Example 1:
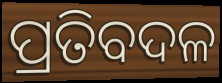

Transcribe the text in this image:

ପ୍ରତିବଦଳ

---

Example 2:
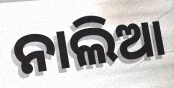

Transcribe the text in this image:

ନାଲିଆ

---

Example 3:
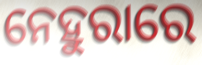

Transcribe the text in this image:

ନେହୁରାରେ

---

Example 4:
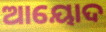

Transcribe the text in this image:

ଆୟୋଦ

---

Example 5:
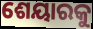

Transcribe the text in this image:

ଶେୟାରକୁ